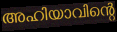
അഹിയാവിന്റെ